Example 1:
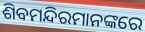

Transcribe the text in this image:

ଶିବମନ୍ଦିରମାନଙ୍କରେ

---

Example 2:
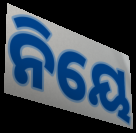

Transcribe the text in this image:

ନିୟେ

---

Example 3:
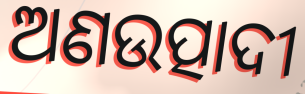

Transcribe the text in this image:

ଅଣଉତ୍ପାଦୀ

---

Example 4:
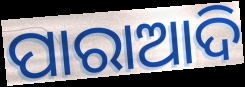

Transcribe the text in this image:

ପାରାଆଦି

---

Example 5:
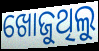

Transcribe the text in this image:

ଖୋଜୁଥିଲୁ